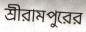
শ্রীরামপুরের